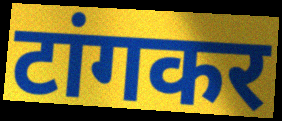
टांगकर